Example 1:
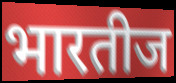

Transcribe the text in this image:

भारतीज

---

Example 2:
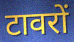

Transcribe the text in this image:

टावरों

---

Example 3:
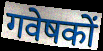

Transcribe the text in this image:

गवेषकों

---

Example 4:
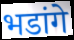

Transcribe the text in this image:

भडांगे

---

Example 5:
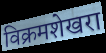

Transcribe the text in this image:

विक्रमशेखरा